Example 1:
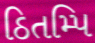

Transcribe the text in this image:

ઠિતમ્પિ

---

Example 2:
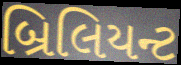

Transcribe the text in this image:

બ્રિલિયન્ટ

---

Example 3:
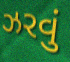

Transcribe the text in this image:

ઝરવું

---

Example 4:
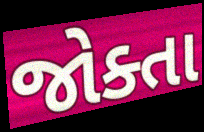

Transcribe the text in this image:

જોક્તા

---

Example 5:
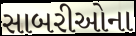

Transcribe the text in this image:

સાબરીઓના